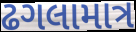
ઢગલામાત્ર